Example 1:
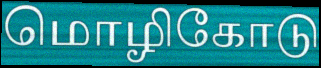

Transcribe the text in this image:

மொழிகோடு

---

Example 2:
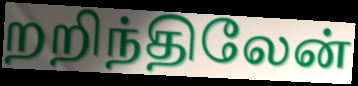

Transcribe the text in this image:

றறிந்திலேன்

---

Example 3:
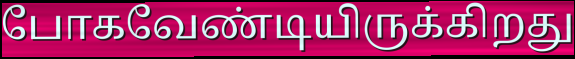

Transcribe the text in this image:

போகவேண்டியிருக்கிறது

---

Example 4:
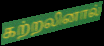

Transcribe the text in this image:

கற்றலினால்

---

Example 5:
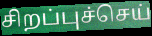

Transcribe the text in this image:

சிறப்புச்செய்